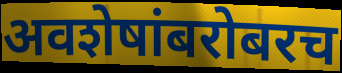
अवशेषांबरोबरच